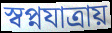
স্বপ্নযাত্রায়